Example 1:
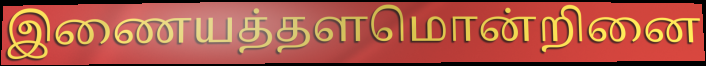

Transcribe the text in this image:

இணையத்தளமொன்றினை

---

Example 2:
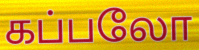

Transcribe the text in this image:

கப்பலோ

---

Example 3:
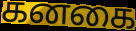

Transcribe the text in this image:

கனகை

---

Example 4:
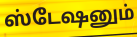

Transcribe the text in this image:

ஸ்டேஷனும்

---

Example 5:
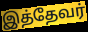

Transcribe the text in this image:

இத்தேவர்